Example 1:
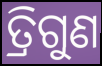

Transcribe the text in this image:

ତ୍ରିଗୁଣ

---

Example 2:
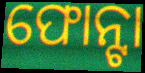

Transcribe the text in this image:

ଫୋନ୍ଟା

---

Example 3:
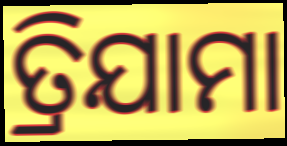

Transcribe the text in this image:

ତ୍ରିଯାମା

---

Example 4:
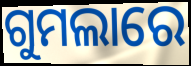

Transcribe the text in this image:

ଗୁମଲାରେ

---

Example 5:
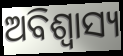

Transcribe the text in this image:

ଅବିଶ୍ଵାସ୍ୟ